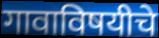
गावाविषयीचे